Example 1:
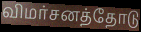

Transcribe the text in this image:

விமர்சனத்தோடு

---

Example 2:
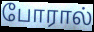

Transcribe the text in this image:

போரால்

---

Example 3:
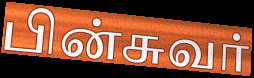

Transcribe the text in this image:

பின்சுவர்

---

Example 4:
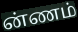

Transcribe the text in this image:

ன்ணம்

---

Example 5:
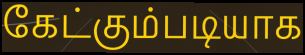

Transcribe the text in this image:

கேட்கும்படியாக